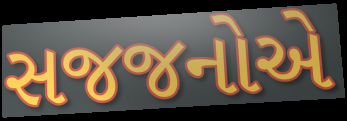
સજજનોએ